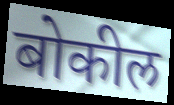
बोकील